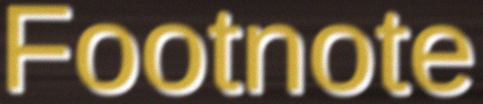
Footnote